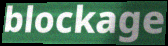
blockage